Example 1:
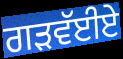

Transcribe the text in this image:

ਗੜਵੱਈਏ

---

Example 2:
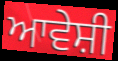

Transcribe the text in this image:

ਆਵੇਸ਼ੀ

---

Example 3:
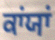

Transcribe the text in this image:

ਕਾਂਯਾਂ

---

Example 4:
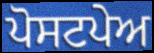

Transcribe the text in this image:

ਪੋਸਟਪੇਅ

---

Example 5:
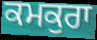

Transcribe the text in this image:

ਕਮਕੁਰਾ